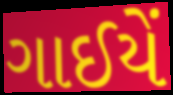
ગાઈયેં